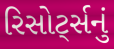
રિસોર્ટ્સનું